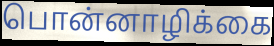
பொன்னாழிக்கை